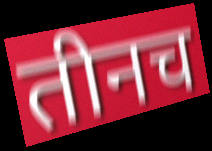
तीनच